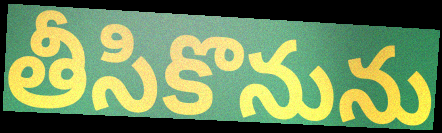
తీసికొనును